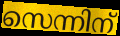
സെന്നിന്